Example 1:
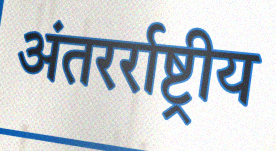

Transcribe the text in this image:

अंतरर्राष्ट्रीय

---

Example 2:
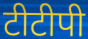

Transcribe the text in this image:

टीटीपी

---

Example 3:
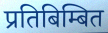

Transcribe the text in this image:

प्रतिबिम्बित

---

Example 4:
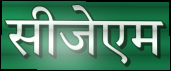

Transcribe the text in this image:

सीजेएम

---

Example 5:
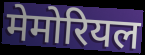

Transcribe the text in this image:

मेमोरियल